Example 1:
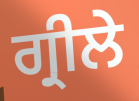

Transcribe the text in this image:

ਗ੍ਰੀਲੇ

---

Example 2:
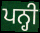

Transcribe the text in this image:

ਪਨ੍ਹੀ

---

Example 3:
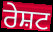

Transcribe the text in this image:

ਰੇਸ਼ਟ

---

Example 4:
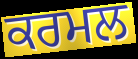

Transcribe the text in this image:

ਕਰਮਲ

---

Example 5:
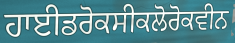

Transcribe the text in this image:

ਹਾਈਡਰੋਕਸੀਕਲੋਰੋਕਵੀਨ